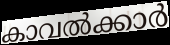
കാവൽക്കാർ